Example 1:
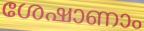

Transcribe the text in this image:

ശേഷാണാം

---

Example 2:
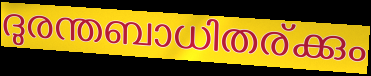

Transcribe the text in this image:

ദുരന്തബാധിതര്ക്കും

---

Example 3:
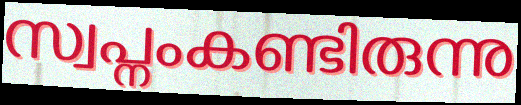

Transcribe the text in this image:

സ്വപ്നംകണ്ടിരുന്നു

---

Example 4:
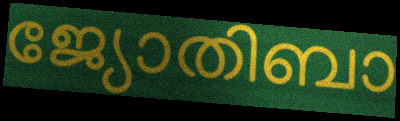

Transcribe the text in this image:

ജ്യോതിബാ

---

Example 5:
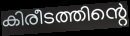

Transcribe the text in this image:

കിരീടത്തിന്റെ